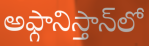
అఫ్గానిస్తాన్‌లో